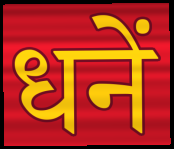
धनें